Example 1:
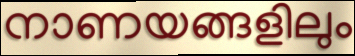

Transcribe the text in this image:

നാണയങ്ങളിലും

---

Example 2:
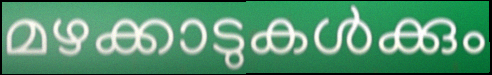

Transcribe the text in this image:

മഴക്കാടുകൾക്കും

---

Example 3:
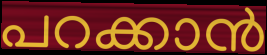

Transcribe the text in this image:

പറക്കാൻ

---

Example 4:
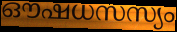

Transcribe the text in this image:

ഔഷധസസ്യം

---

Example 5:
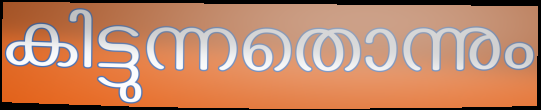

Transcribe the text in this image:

കിട്ടുന്നതൊന്നും